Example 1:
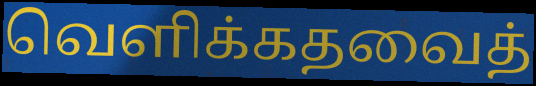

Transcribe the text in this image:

வெளிக்கதவைத்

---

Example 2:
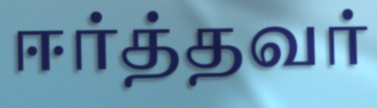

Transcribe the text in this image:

ஈர்த்தவர்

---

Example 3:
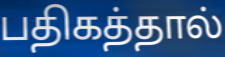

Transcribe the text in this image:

பதிகத்தால்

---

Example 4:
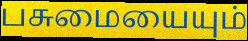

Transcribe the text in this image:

பசுமையையும்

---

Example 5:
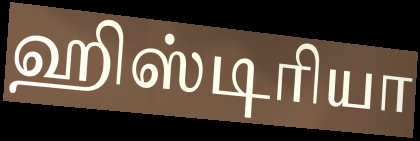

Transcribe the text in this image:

ஹிஸ்டிரியா